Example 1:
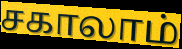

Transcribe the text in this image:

சகாலாம்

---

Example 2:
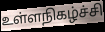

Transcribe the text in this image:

உள்ளநிகழ்ச்சி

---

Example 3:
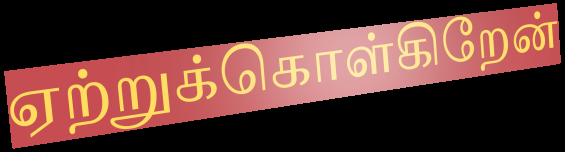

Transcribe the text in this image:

ஏற்றுக்கொள்கிறேன்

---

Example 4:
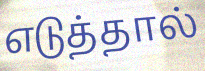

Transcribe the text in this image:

எடுத்தால்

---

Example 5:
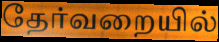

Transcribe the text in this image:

தேர்வறையில்